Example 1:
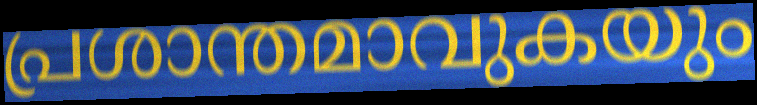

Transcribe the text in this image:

പ്രശാന്തമാവുകയും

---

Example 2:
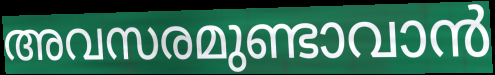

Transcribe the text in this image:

അവസരമുണ്ടാവാൻ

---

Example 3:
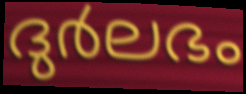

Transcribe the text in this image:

ദുർലഭം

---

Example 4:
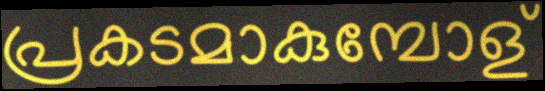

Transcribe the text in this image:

പ്രകടമാകുമ്പോള്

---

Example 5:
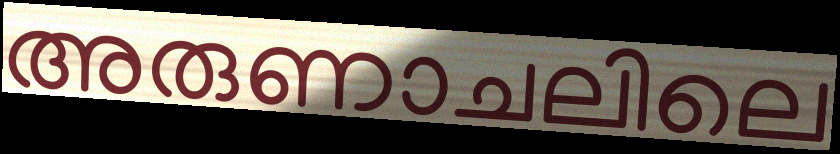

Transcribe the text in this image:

അരുണാചലിലെ